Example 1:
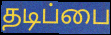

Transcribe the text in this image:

தடிப்பை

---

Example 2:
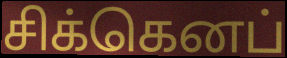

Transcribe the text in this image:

சிக்கெனப்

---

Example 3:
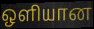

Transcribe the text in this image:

ஒளியான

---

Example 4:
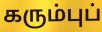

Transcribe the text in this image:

கரும்புப்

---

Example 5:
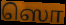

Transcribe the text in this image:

ஸொ